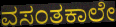
ವಸಂತಕಾಲೇ